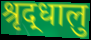
श्रृद्धालु